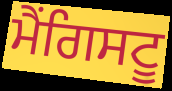
ਮੈਂਗਿਸਟੂ